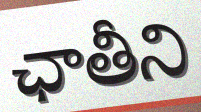
ఛాతీని